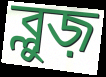
ব্লুজ়